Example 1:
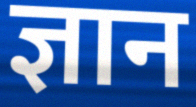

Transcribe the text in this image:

ज्ञान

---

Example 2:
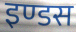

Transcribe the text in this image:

इण्डस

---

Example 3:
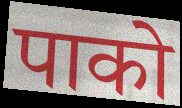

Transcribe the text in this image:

पाको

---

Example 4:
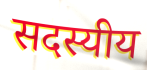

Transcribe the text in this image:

सदस्यीय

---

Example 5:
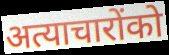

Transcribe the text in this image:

अत्याचारोंको